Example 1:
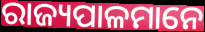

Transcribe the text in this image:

ରାଜ୍ୟପାଳମାନେ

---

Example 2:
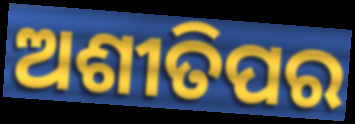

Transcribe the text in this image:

ଅଶୀତିପର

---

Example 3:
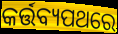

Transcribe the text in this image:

କର୍ତ୍ତବ୍ୟପଥରେ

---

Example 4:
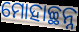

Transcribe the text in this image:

ମୋହାଚ୍ଛନ୍ନ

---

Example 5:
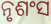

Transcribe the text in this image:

ନୃଶଂସ